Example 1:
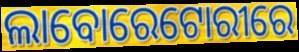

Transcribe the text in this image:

ଲାବୋରେଟୋରୀରେ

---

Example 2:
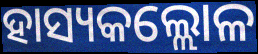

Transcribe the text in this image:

ହାସ୍ୟକଲ୍ଲୋଳ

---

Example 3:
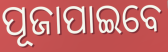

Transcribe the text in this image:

ପୂଜାପାଇବେ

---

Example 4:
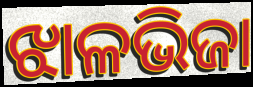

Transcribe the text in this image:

ଝାଳଭିଜା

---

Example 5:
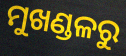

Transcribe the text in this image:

ମୁଖଣ୍ଡଳରୁ